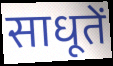
साधूतें